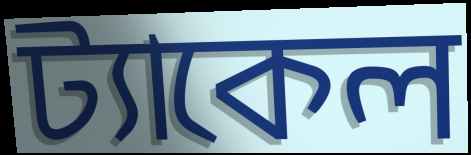
ট্যাকেল